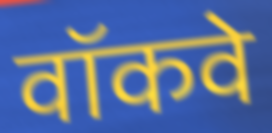
वॉकवे